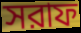
সরাফ